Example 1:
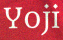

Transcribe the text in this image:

Yoji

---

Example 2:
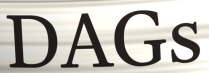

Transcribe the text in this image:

DAGs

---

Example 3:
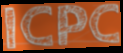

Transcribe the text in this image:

ICPC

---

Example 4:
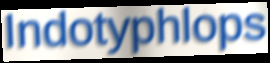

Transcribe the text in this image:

Indotyphlops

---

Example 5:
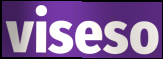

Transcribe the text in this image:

viseso